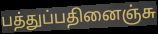
பத்துப்பதினைஞ்சு